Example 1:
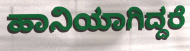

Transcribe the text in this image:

ಹಾನಿಯಾಗಿದ್ದರೆ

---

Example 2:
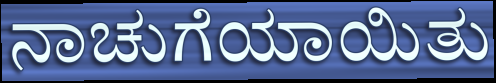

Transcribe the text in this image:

ನಾಚುಗೆಯಾಯಿತು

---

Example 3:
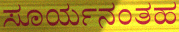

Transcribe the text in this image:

ಸೂರ್ಯನಂತಹ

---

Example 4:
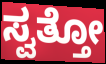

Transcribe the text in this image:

ಸ್ವತ್ತೋ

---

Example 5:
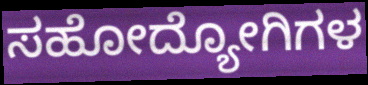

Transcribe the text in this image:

ಸಹೋದ್ಯೋಗಿಗಳ